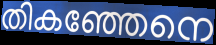
തികഞ്ഞേനെ